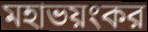
মহাভয়ংকর